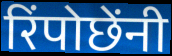
रिंपोछेंनी